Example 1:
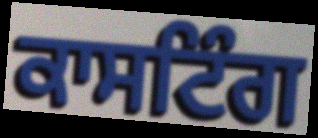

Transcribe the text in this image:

ਕਾਸਟਿੰਗ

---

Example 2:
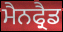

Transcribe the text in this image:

ਮੈਨਫ੍ਰੈਡ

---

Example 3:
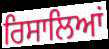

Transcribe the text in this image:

ਰਿਸਾਲਿਆਂ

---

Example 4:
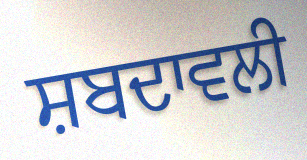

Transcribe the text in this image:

ਸ਼ਬਦਾਵਲੀ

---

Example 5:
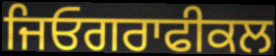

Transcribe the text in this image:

ਜਿਓਗਰਾਫੀਕਲ